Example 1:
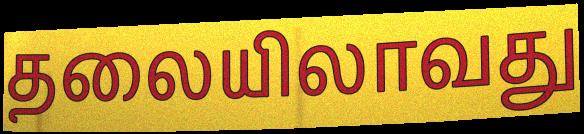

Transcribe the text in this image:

தலையிலாவது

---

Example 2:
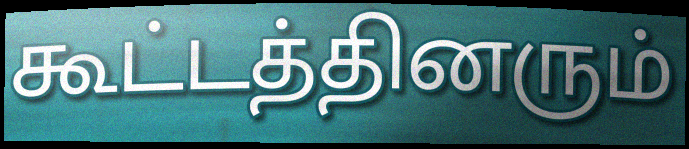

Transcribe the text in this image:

கூட்டத்தினரும்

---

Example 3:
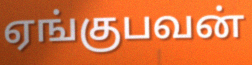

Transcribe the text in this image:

ஏங்குபவன்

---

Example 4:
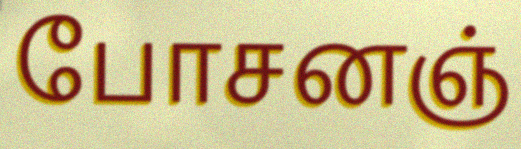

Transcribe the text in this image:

போசனஞ்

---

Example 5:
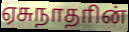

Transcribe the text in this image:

ஏசுநாதரின்